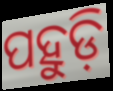
ପହୁଡ଼ି